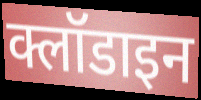
क्लॉडाइन